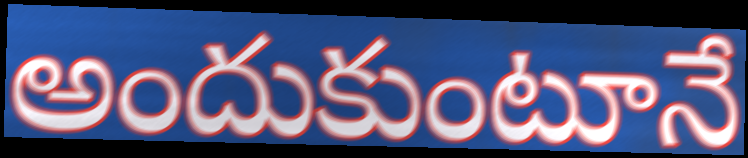
అందుకుంటూనే